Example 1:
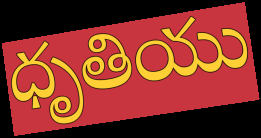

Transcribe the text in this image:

ధృతియు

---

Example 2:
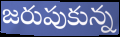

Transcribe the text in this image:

జరుపుకున్న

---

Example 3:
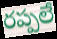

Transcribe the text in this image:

రప్పలే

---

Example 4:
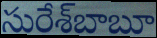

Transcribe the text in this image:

సురేశ్‌బాబూ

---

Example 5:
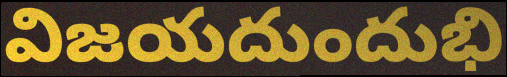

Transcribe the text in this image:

విజయదుందుభి